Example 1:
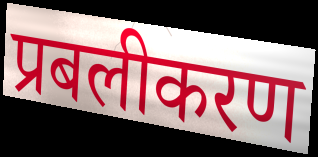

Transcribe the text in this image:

प्रबलीकरण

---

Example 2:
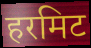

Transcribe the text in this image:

हरमिट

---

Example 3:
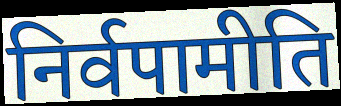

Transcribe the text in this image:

निर्वपामीति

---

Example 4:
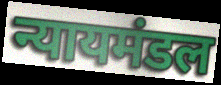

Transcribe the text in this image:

न्यायमंडल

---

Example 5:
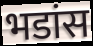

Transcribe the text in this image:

भडांस